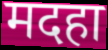
मदहा